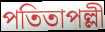
পতিতাপল্লী